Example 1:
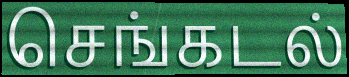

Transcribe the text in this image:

செங்கடல்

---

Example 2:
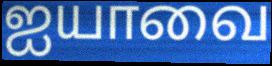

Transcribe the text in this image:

ஐயாவை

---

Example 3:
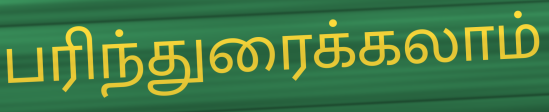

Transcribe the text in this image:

பரிந்துரைக்கலாம்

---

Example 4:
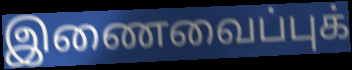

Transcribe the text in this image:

இணைவைப்புக்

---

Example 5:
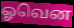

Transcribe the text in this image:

ஓவென